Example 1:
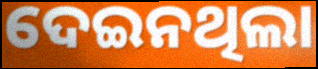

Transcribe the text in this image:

ଦେଇନଥିଲା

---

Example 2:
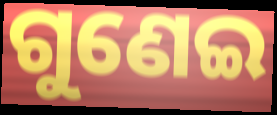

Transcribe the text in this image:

ଗୁଣେଇ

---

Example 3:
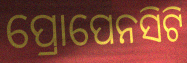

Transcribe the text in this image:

ପ୍ରୋପେନସିଟି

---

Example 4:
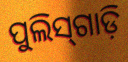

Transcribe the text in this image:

ପୁଲିସ୍‌ଗାଡ଼ି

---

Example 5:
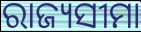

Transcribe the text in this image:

ରାଜ୍ୟସୀମା